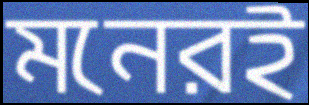
মনেরই